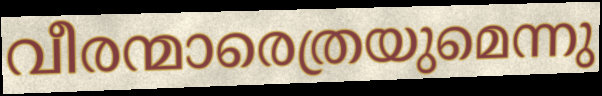
വീരന്മാരെത്രയുമെന്നു